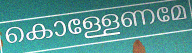
കൊള്ളേണമേ